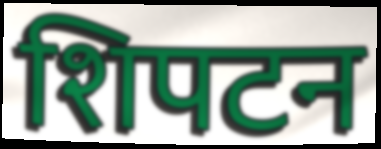
शिपटन